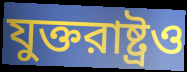
যুক্তরাষ্ট্রও